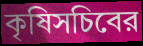
কৃষিসচিবের